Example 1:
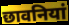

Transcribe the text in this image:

छावनियां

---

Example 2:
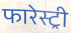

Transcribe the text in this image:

फारेस्ट्री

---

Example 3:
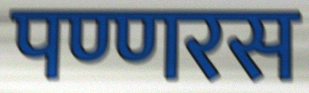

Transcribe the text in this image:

पण्णरस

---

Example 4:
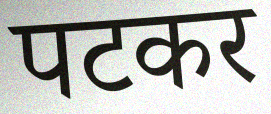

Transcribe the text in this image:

पटकर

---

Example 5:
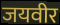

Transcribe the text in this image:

जयवीर